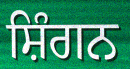
ਸ਼ਿੰਗਨ